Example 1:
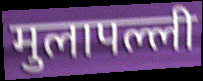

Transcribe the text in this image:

मुलापल्ली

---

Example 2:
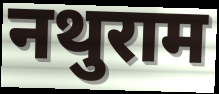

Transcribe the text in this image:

नथुराम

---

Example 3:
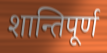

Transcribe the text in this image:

शान्तिपूर्ण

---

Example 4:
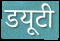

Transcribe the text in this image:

डयूटी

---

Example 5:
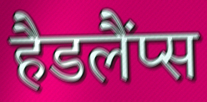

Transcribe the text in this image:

हैडलैंप्स